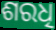
ଶରଧି